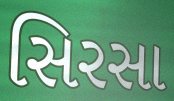
સિરસા